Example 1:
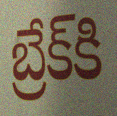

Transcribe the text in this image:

బ్రేక్‌కి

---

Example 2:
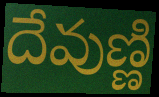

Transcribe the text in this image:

దేవుణ్ణి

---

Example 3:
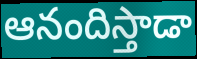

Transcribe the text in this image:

ఆనందిస్తాడా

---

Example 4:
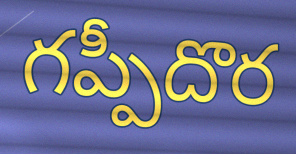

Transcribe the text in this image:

గప్పీదొర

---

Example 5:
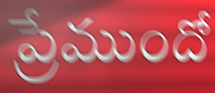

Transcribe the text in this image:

ప్రేముందో